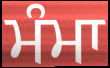
ਮੰਮਾ